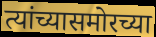
त्यांच्यासमोरच्या